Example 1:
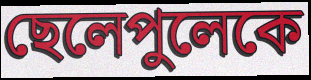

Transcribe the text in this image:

ছেলেপুলেকে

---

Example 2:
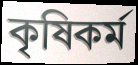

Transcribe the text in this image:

কৃষিকর্ম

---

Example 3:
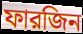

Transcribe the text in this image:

ফারজিন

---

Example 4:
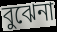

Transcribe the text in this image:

বুঝেনা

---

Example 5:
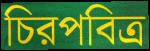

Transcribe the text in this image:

চিরপবিত্র